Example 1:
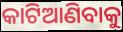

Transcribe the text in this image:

କାଟିଆଣିବାକୁ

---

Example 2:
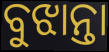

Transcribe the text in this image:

ବୁଝାନ୍ତା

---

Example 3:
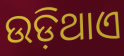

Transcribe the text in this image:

ଉଡ଼ିଥାଏ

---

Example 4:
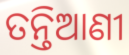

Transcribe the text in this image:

ତନ୍ତିଆଣୀ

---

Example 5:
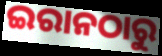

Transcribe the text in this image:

ଇରାନଠାରୁ